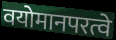
वयोमानपरत्वे